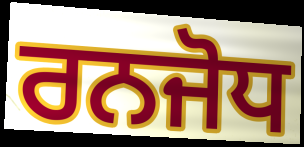
ਰਨਜੋਧ